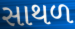
સાથળ